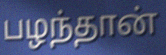
பழந்தான்